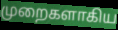
முறைகளாகிய